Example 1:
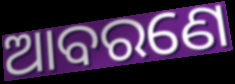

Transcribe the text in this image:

ଆବରଣେ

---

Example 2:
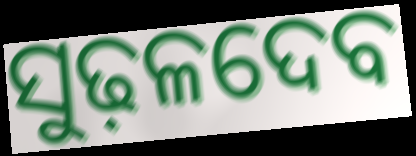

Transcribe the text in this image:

ସୁଢ଼ଳଦେବ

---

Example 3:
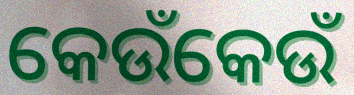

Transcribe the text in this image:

କେଉଁକେଉଁ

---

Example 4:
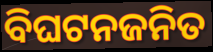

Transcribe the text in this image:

ବିଘଟନଜନିତ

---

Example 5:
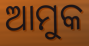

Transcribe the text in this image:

ଆମୁକ